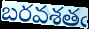
బరవశతఁ